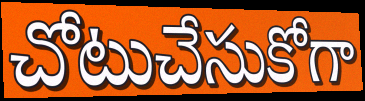
చోటుచేసుకోగా